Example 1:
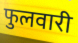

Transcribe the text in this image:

फुलवारी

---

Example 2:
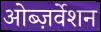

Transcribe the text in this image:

ओब्ज़र्वेशन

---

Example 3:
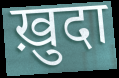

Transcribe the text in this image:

ख़ुदा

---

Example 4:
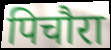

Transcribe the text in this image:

पिचौरा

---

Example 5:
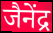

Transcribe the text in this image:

जैनेंद्र